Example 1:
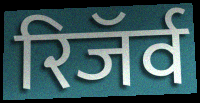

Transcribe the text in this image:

रिजॅर्व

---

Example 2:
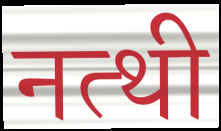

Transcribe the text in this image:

नत्थी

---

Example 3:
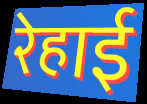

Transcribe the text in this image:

रेहाई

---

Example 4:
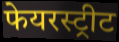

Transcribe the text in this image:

फेयरस्ट्रीट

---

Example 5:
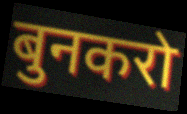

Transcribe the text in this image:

बुनकरो